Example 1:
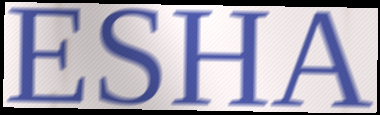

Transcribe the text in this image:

ESHA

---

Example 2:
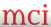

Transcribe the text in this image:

mci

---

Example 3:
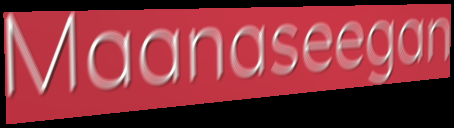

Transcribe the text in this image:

Maanaseegan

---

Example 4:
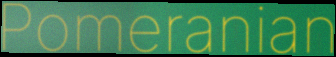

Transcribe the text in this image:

Pomeranian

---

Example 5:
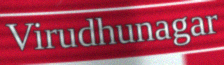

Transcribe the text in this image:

Virudhunagar